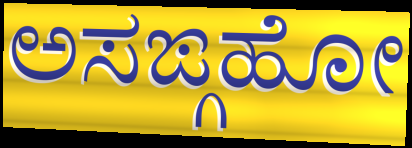
ಅಸಙ್ಗಹೋ